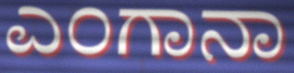
ಎಂಗಾನಾ